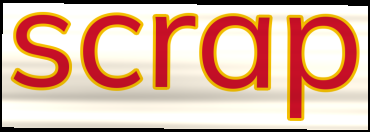
scrap